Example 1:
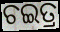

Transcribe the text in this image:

ଚଇତ୍ର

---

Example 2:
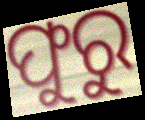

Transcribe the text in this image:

ଫୁରୁ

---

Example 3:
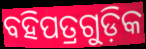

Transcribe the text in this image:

ବହିପତ୍ରଗୁଡ଼ିକ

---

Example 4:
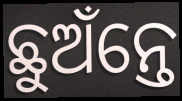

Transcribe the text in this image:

ଛୁଅଁନ୍ତେ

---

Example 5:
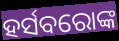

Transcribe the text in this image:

ହର୍ସବରୋଙ୍କ